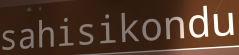
sahisikondu